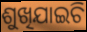
ଶୁଖିଯାଇଚି